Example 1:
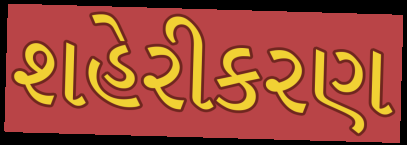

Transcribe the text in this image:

શહેરીકરણ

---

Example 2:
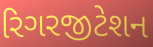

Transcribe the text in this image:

રિગરજીટેશન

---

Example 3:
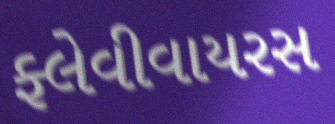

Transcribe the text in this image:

ફ્લેવીવાયરસ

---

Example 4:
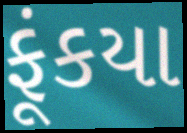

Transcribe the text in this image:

ફૂંકયા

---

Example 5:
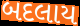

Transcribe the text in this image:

બદલાય